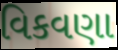
વિકવણા